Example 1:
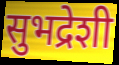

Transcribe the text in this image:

सुभद्रेशी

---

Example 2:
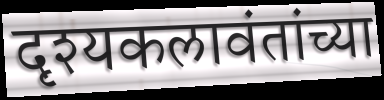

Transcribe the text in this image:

दृश्यकलावंतांच्या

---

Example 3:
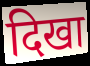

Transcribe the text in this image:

दिखा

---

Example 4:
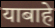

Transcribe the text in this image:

याबाहे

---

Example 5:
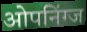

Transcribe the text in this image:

ओपनिंग्ज